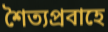
শৈত্যপ্রবাহে